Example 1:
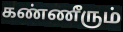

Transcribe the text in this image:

கண்ணீரும்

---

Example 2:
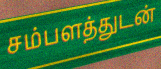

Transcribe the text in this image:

சம்பளத்துடன்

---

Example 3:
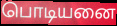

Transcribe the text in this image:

பொடியனை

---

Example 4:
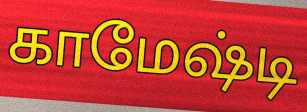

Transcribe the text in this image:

காமேஷ்டி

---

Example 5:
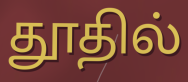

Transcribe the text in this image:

தூதில்